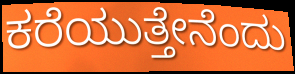
ಕರೆಯುತ್ತೇನೆಂದು